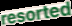
resorted